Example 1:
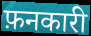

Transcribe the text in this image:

फ़नकारी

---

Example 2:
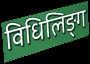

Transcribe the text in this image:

विधिलिङ्ग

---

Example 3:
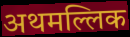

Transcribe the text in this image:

अथमल्लिक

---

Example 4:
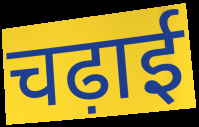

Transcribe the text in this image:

चढ़ाई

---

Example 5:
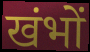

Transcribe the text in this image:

खंभों